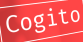
Cogito